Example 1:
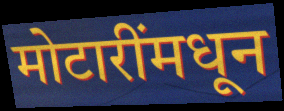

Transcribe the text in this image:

मोटारींमधून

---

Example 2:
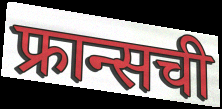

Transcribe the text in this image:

फ्रान्सची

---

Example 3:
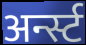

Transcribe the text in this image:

अर्न्स्ट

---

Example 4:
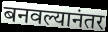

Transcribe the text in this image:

बनवल्यानंतर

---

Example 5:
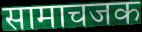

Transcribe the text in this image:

सामाचजक